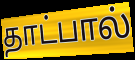
தாட்பால்